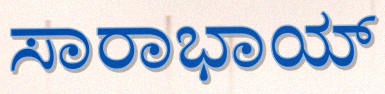
ಸಾರಾಭಾಯ್